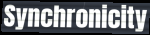
Synchronicity